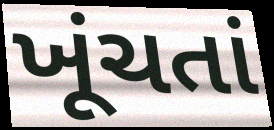
ખૂંચતાં